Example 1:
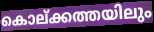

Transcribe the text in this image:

കൊല്ക്കത്തയിലും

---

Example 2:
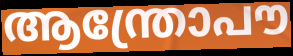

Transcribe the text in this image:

ആന്ത്രോപൗ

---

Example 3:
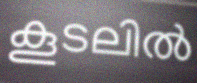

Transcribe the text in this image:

കൂടലിൽ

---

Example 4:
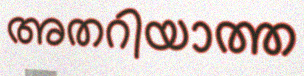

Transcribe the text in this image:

അതറിയാത്ത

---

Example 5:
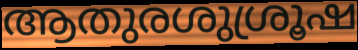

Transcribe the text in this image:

ആതുരശുശ്രൂഷ